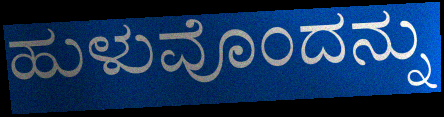
ಹುಳುವೊಂದನ್ನು